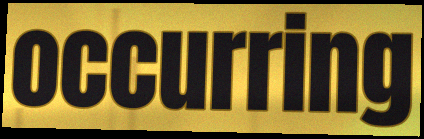
occurring